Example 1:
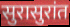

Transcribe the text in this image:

सुरासुरांत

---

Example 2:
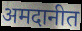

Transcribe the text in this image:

अमदानीत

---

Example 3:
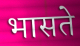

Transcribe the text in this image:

भासते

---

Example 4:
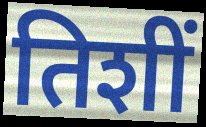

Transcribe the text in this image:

तिशीं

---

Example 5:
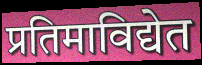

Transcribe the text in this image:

प्रतिमाविद्येत